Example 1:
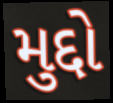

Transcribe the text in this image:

મુદ્દો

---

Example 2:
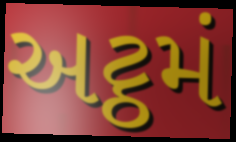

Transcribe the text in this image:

અટ્ઠમં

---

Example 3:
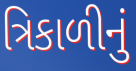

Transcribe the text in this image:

ત્રિકાળીનું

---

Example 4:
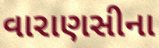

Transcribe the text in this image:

વારાણસીના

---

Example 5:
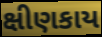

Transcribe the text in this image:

ક્ષીણકાય